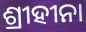
ଶ୍ରୀହୀନା